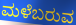
ಮಳೆಬರುವ